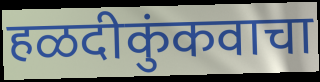
हळदीकुंकवाचा